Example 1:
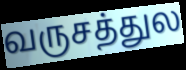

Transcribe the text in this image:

வருசத்துல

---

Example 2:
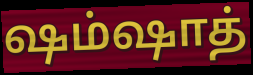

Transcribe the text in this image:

ஷம்ஷாத்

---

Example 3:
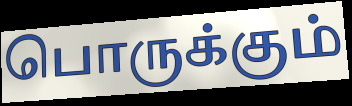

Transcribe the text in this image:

பொருக்கும்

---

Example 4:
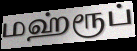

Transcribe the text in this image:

மஹ்ரூப்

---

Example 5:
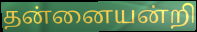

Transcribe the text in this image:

தன்னையன்றி